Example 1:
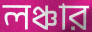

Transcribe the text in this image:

লঞ্চার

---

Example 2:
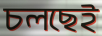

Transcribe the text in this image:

চলছেই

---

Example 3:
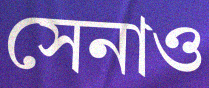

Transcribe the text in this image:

সেনাও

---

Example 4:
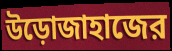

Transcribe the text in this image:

উড়োজাহাজের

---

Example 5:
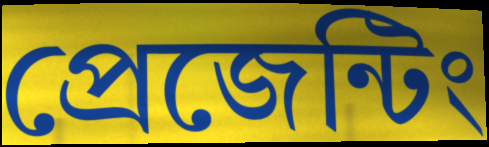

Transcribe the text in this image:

প্রেজেন্টিং